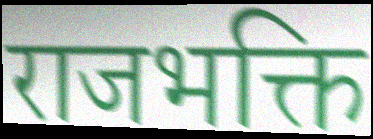
राजभक्ति